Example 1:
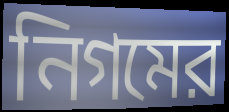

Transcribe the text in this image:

নিগমের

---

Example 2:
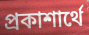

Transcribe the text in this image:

প্রকাশার্থে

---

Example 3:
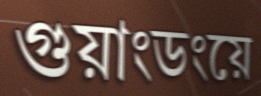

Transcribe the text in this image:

গুয়াংডংয়ে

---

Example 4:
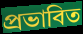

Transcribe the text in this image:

প্রভাবিত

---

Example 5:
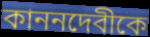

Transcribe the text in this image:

কাননদেবীকে